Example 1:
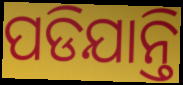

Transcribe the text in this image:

ପଡିଯାନ୍ତି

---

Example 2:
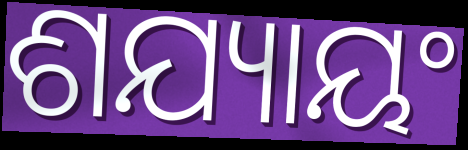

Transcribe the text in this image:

ଶଯ୍ୟାୟଂ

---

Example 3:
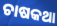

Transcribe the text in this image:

ଚାଷକଥା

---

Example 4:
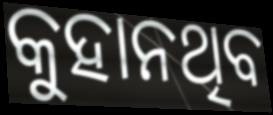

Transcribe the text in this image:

କୁହାନଥିବ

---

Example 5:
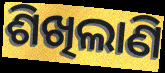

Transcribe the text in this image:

ଶିଖିଲାଣି